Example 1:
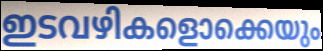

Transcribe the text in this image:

ഇടവഴികളൊക്കെയും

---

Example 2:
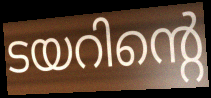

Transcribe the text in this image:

ടയറിന്റെ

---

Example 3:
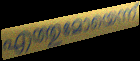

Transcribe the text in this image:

എത്തുമോയെന്ന്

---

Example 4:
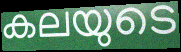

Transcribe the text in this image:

കലയുടെ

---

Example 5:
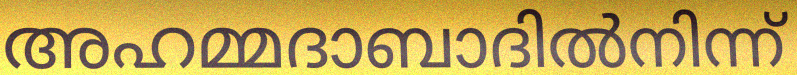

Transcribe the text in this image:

അഹമ്മദാബാദിൽനിന്ന്